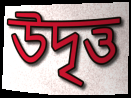
উদৃত্ত